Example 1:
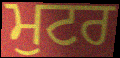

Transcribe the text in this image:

ਮੁਟਰ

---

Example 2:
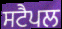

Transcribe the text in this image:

ਸਟੈਪਲ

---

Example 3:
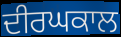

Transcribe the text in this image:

ਦੀਰਘਕਾਲ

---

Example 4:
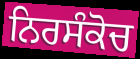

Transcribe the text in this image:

ਨਿਰਸੰਕੋਚ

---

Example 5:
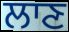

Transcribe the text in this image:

ਲਾਣ